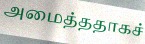
அமைத்ததாகச்